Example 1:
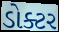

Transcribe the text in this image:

ડોક્ટર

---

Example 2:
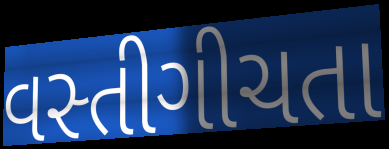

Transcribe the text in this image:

વસ્તીગીચતા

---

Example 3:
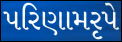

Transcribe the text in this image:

પરિણામરૃપે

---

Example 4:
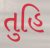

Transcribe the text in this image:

તુહિ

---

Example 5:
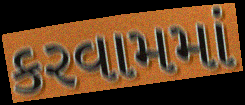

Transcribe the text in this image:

કરવામમાં